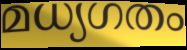
മധ്യഗതം